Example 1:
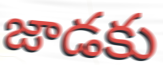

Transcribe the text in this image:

జాడకు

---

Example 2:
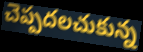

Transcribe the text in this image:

చెప్పదలచుకున్న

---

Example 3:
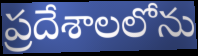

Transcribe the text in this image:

ప్రదేశాలలోను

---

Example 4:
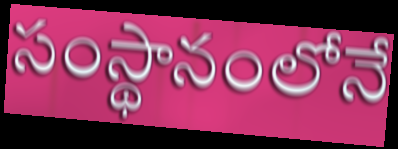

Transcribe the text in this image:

సంస్థానంలోనే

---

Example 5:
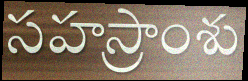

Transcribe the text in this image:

సహస్రాంశు